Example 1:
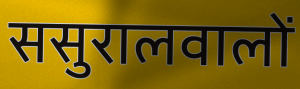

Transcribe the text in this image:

ससुरालवालों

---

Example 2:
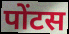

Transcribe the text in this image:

पोंटस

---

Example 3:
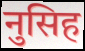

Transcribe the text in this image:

नुसिह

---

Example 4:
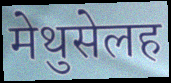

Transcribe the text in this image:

मेथुसेलह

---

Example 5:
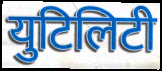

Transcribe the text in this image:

युटिलिटी